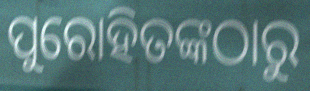
ପୁରୋହିତଙ୍କଠାରୁ